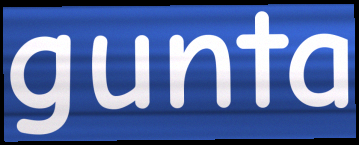
gunta